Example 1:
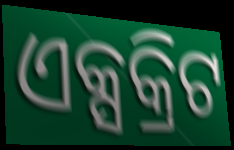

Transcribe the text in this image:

ଏକ୍ସକ୍ରିଟ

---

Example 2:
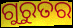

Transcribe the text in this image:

ଗୁରୁତର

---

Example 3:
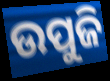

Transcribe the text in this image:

ଉପୁଜି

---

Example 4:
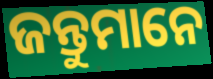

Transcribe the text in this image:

ଜନ୍ତୁମାନେ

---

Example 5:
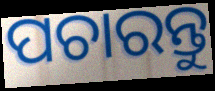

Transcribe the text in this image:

ପଚାରନ୍ତୁ